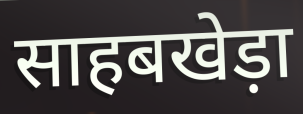
साहबखेड़ा